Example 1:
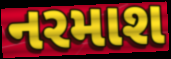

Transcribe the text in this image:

નરમાશ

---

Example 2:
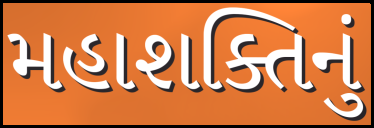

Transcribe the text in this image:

મહાશક્તિનું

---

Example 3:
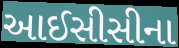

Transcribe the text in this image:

આઈસીસીના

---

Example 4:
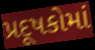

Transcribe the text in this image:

પ્રદૂષકોમાં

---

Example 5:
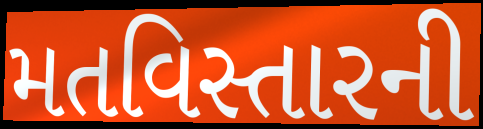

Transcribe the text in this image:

મતવિસ્તારની